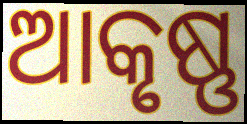
ଆକୃଷ୍ଣ